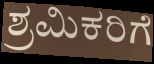
ಶ್ರಮಿಕರಿಗೆ